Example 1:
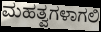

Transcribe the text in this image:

ಮಹತ್ವಗಳಾಗಲಿ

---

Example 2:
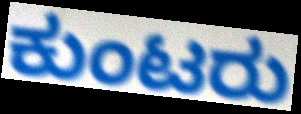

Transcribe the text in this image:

ಕುಂಟರು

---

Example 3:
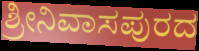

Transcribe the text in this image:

ಶ್ರೀನಿವಾಸಪುರದ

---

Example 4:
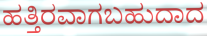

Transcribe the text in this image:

ಹತ್ತಿರವಾಗಬಹುದಾದ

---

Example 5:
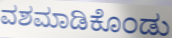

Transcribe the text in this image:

ವಶಮಾಡಿಕೊಂಡು